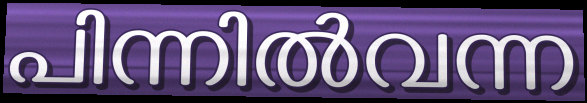
പിന്നിൽവന്ന